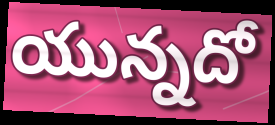
యున్నదో